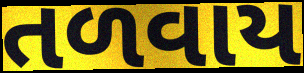
તળવાય